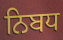
ਨਿਬਧ